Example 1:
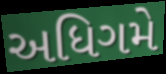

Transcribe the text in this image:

અધિગમે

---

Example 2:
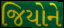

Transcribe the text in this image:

જિયોને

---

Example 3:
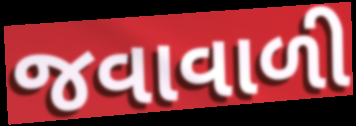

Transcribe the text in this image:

જવાવાળી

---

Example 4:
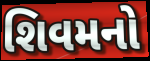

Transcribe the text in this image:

શિવમનો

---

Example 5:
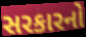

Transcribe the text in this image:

સરકારનો